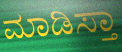
ಮಾಡಿಸ್ತಾ